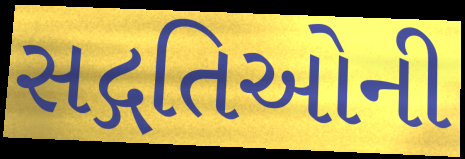
સદ્ગતિઓની